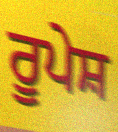
ਰੂਪੇਸ਼